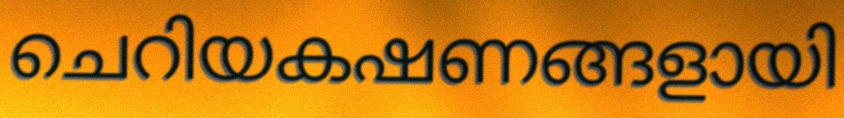
ചെറിയകഷണങ്ങളായി